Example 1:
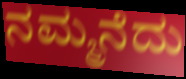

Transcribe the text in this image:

ನಮ್ಮನೆದು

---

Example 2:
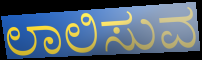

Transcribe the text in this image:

ಲಾಲಿಸುವ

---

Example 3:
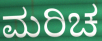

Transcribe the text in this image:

ಮರಿಚ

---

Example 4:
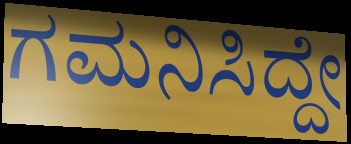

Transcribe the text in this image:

ಗಮನಿಸಿದ್ದೇ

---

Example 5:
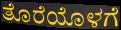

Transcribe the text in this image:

ತೊರೆಯೊಳಗೆ